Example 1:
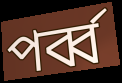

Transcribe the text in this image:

পর্ব্ব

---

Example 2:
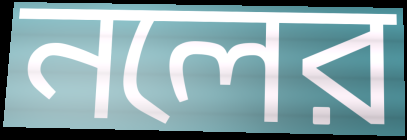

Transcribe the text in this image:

নলের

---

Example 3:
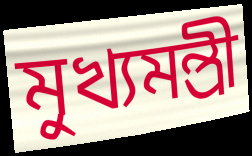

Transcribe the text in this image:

মুখ্যমন্ত্রী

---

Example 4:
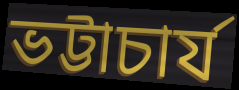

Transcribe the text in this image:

ভট্টাচার্য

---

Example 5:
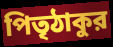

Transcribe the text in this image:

পিতৃঠাকুর